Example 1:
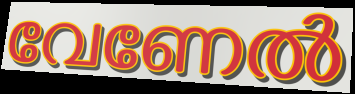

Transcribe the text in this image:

വേണേൽ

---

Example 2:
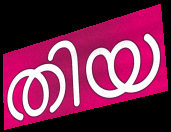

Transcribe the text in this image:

തിയ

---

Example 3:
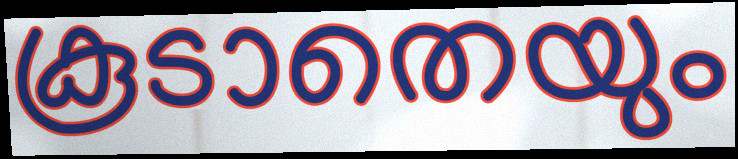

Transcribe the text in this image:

കൂടാതെയും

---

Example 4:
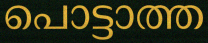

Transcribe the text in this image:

പൊട്ടാത്ത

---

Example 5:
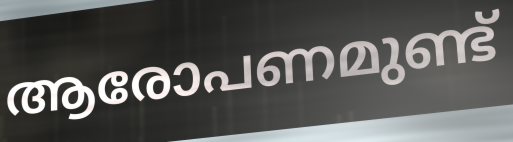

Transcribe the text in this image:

ആരോപണമുണ്ട്